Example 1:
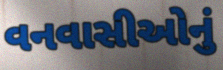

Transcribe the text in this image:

વનવાસીઓનું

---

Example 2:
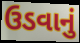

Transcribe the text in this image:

ઉડવાનું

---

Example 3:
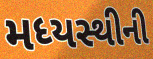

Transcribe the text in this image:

મધ્યસ્થીની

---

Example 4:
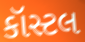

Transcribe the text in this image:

કૉસ્ટલ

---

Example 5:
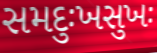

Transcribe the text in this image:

સમદુઃખસુખઃ